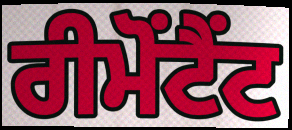
ਰੀਮੋਂਟੈਂਟ